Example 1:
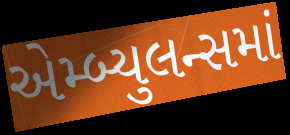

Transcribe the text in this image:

એમ્બ્યુલન્સમાં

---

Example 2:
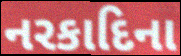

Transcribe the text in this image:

નરકાદિના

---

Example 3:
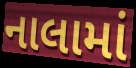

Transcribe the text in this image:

નાલામાં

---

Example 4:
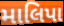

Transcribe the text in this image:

માલિપા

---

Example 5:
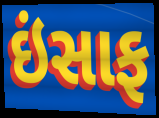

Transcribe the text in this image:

ઇંસાફ